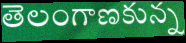
తెలంగాణకున్న